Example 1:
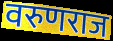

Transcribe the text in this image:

वरुणराज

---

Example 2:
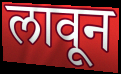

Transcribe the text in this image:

लावून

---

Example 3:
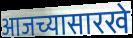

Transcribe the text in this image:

आजच्यासारखे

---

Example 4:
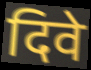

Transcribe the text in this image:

दिवे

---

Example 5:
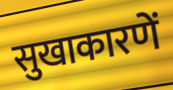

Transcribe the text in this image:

सुखाकारणें